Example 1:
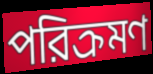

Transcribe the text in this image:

পরিক্রমণ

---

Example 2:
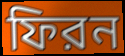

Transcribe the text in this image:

ফিরন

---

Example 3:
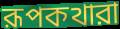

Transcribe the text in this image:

রূপকথারা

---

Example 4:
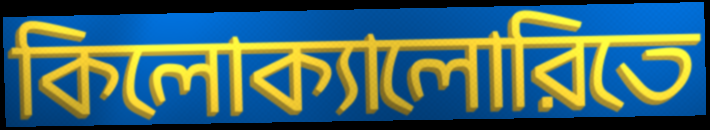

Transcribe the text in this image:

কিলোক্যালোরিতে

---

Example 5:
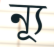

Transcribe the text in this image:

ন্যূ